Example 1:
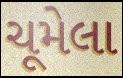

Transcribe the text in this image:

ચૂમેલા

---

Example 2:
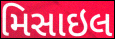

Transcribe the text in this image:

મિસાઇલ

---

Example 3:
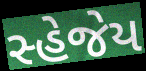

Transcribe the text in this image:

સ્હેજેય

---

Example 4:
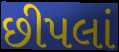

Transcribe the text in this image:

છીપલાં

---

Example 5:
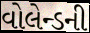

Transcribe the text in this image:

વોલેન્ડની